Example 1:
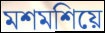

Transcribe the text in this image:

মশমশিয়ে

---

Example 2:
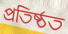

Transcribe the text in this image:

প্রতিষ্ঠত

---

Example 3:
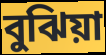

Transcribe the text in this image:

বুঝিয়া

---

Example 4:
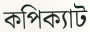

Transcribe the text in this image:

কপিক্যাট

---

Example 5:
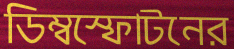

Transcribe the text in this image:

ডিম্বস্ফোটনের